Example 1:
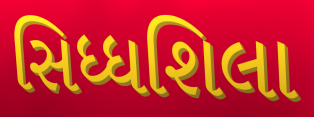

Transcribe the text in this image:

સિધ્ધશિલા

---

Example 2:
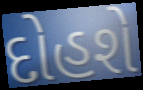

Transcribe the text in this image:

દોહશે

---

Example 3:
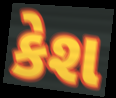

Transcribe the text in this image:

કેશ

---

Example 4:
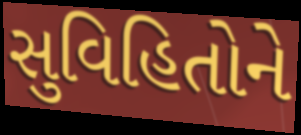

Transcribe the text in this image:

સુવિહિતોને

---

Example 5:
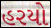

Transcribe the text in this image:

હરયો